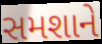
સમશાને